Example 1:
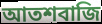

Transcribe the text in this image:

আতশবাজি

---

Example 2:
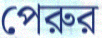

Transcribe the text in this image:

পেরুর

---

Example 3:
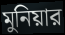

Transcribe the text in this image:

মুনিয়ার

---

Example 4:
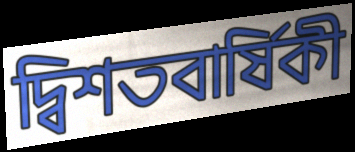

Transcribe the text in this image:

দ্বিশতবার্ষিকী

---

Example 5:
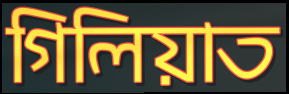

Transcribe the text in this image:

গিলিয়াত